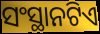
ସଂସ୍ଥାନଟିଏ